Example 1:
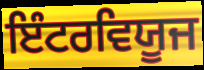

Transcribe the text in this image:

ਇੰਟਰਵਿਯੂਜ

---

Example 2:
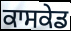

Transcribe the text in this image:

ਕਾਸਕੇਡ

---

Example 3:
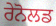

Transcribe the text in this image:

ਰੇਨੋਲਡ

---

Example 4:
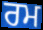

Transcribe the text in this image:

ਰਮ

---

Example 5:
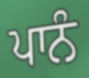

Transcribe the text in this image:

ਪਾਨੰ